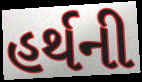
હર્થની